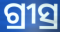
ଗ୍ରୀସ୍ର